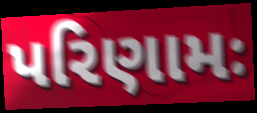
પરિણામઃ